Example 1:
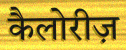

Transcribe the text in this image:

कैलोरीज़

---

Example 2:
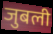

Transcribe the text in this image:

जुबली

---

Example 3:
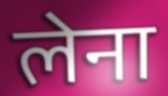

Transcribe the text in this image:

लेना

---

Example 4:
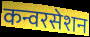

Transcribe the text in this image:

कन्वरसेशन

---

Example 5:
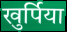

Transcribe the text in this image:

खुर्पिया